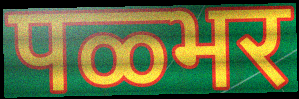
पळ्भर